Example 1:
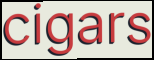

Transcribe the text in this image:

cigars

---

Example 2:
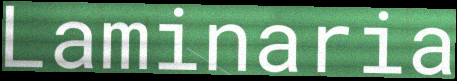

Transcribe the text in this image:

Laminaria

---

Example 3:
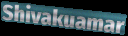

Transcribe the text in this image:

Shivakuamar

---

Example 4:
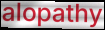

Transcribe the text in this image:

alopathy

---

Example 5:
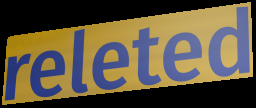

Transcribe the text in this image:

releted